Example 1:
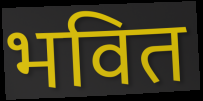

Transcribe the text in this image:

भवित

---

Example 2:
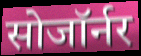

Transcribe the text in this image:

सोजॉर्नर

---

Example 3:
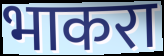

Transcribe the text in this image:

भाकरा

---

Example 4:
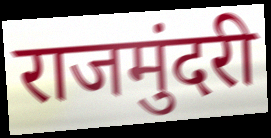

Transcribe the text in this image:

राजमुंदरी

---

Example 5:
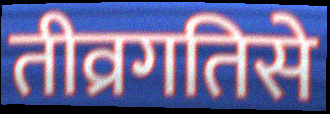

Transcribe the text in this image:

तीव्रगतिसे